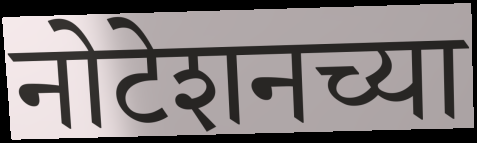
नोटेशनच्या